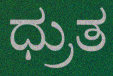
ಧ್ರುತ